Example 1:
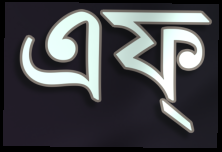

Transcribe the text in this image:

এফ্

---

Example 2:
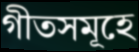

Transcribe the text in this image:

গীতসমূহে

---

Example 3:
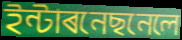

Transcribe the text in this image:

ইন্টাৰনেছনেলে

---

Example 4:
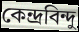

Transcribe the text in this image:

কেন্দ্ৰবিন্দু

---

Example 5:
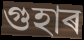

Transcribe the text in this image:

গুহাৰ